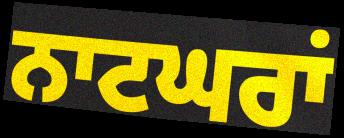
ਨਾਟਘਰਾਂ